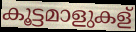
കൂട്ടമാളുകള്